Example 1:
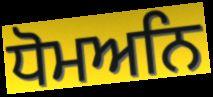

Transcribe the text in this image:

ਧੋਮਅਨਿ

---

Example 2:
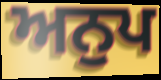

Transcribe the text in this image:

ਅਨੁਪ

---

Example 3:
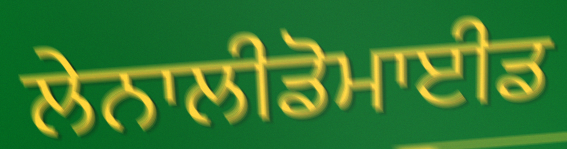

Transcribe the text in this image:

ਲੇਨਾਲੀਡੋਮਾਈਡ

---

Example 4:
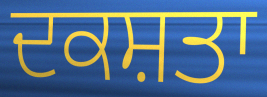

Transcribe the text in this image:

ਦਕਸ਼ਤਾ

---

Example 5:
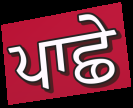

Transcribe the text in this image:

ਪਾਛੇ